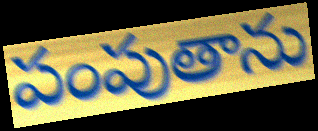
పంపుతాను